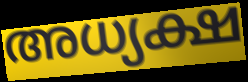
അധ്യക്ഷ